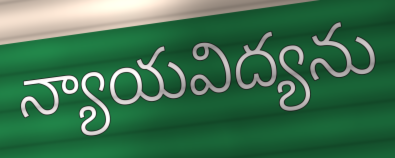
న్యాయవిద్యను